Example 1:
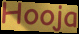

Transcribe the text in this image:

Hooja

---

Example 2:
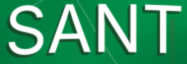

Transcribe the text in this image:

SANT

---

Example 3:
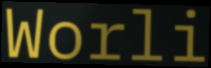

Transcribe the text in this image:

Worli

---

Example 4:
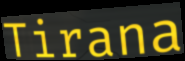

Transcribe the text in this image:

Tirana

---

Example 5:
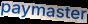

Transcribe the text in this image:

paymaster